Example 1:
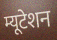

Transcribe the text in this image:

म्यूटेशन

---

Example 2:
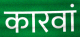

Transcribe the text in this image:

कारवां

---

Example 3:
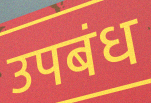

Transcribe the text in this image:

उपबंध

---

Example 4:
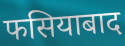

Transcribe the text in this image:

फसियाबाद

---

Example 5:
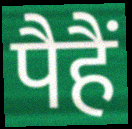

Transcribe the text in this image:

पैहैं